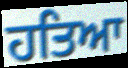
ਹਤਿਆ